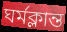
ঘর্মক্লান্ত